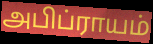
அபிப்ராயம்